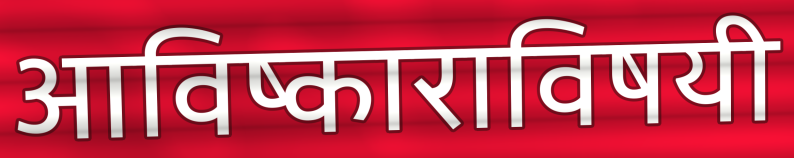
आविष्काराविषयी